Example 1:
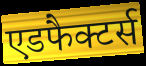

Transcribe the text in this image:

एडफैक्टर्स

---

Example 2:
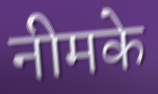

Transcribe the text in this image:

नीमके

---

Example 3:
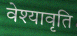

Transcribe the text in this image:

वेश्यावृति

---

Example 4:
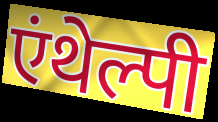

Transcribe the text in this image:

एंथेल्पी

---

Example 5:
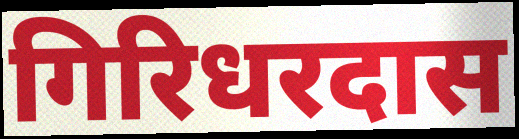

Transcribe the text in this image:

गिरिधरदास